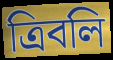
ত্রিবলি